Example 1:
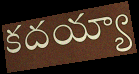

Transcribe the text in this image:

కదయ్యా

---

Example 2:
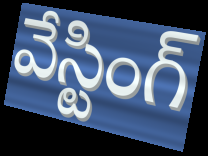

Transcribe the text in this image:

వేస్టింగ్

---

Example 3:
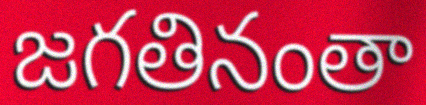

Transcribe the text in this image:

జగతినంతా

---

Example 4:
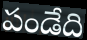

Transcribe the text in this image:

పండేది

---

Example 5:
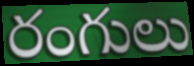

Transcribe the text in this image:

రంగులు